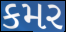
કમર